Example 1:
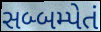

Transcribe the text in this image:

સબ્બમ્પેતં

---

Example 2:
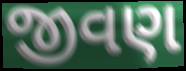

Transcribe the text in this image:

જીવણ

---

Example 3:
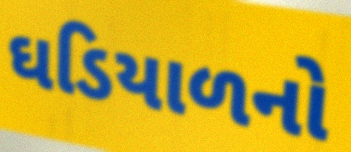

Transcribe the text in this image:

ઘડિયાળનો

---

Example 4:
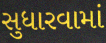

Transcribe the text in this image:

સુધારવામાં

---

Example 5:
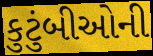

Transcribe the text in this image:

કુટુંબીઓની